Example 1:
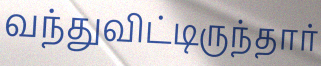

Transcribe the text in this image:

வந்துவிட்டிருந்தார்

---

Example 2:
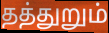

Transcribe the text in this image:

தத்துறும்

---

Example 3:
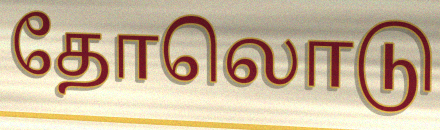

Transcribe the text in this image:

தோலொடு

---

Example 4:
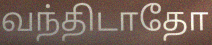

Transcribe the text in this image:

வந்திடாதோ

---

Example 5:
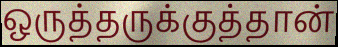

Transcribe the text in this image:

ஒருத்தருக்குத்தான்